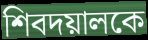
শিবদয়ালকে